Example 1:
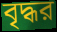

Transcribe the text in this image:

বৃদ্ধর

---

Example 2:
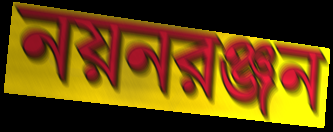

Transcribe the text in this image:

নয়নরঞ্জন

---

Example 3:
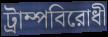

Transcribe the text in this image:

ট্রাম্পবিরোধী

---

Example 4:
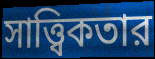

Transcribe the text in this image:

সাত্ত্বিকতার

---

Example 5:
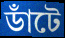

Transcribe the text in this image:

ডাঁটে